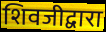
शिवजीद्वारा